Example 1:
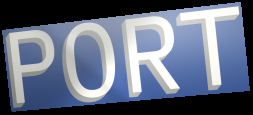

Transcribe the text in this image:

PORT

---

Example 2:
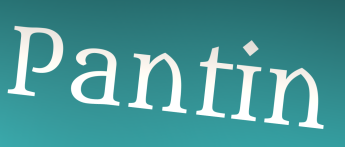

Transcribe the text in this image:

Pantin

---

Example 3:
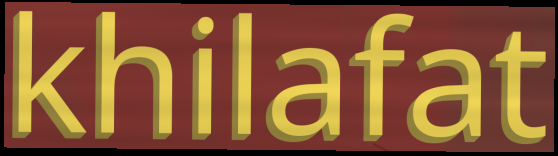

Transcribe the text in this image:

khilafat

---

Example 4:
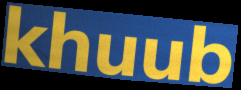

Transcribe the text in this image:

khuub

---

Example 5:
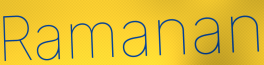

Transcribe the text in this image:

Ramanan